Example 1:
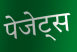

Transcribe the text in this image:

पेजेट्स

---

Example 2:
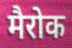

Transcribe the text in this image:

मैरोक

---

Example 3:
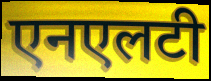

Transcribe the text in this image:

एनएलटी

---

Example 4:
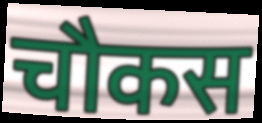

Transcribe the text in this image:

चौकस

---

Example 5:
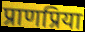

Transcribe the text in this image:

प्राणप्रिया